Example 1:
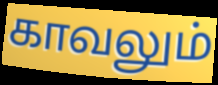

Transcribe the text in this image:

காவலும்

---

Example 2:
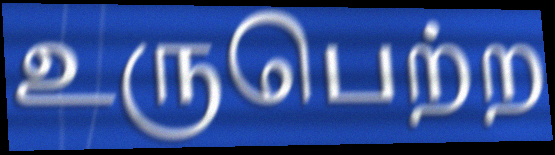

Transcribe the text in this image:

உருபெற்ற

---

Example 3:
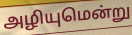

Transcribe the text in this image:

அழியுமென்று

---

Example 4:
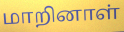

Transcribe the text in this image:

மாறினாள்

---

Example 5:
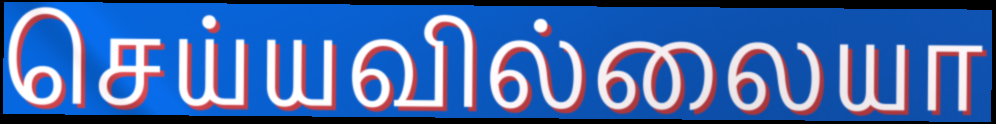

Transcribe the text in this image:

செய்யவில்லையா